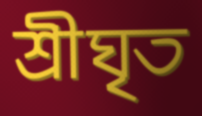
শ্রীঘৃত